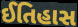
ઈતિહાસ